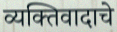
व्यक्तिवादाचे